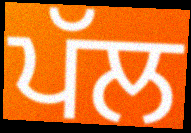
ਪੱਲ